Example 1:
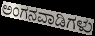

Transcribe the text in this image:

ಅಂಗನವಾಡಿಗಳು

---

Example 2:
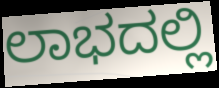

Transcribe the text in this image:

ಲಾಭದಲ್ಲಿ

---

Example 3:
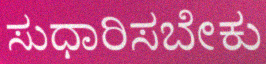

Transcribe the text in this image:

ಸುಧಾರಿಸಬೇಕು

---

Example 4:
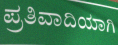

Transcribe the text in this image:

ಪ್ರತಿವಾದಿಯಾಗಿ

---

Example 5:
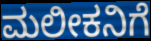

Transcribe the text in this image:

ಮಲೀಕನಿಗೆ